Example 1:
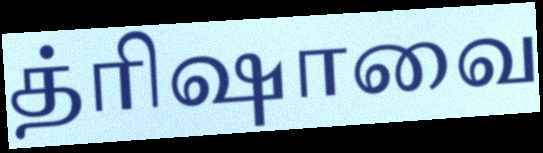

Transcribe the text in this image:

த்ரிஷாவை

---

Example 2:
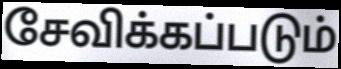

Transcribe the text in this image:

சேவிக்கப்படும்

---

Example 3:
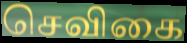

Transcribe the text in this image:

செவிகை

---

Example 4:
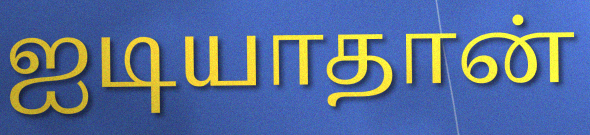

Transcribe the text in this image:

ஐடியாதான்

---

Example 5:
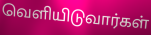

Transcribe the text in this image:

வெளியிடுவார்கள்